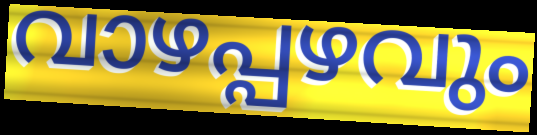
വാഴപ്പഴവും